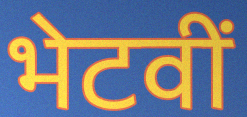
भेटवीं